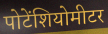
पोटेंशियोमीटर